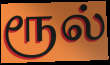
ரூல்